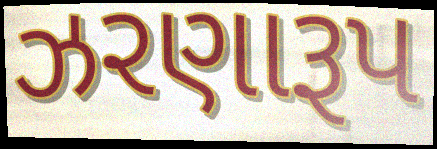
ઝરણારૂપ